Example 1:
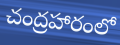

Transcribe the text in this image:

చంద్రహారంలో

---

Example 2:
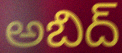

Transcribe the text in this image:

అబిద్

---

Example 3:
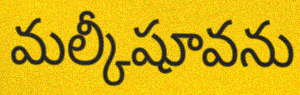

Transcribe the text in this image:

మల్కీషూవను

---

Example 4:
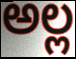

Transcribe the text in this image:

అల్ల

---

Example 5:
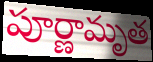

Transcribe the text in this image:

పూర్ణామృత